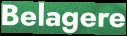
Belagere